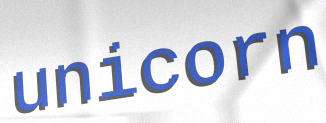
unicorn